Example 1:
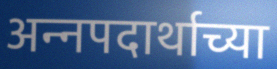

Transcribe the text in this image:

अन्नपदार्थाच्या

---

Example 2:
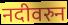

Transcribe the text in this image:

नदीवरुन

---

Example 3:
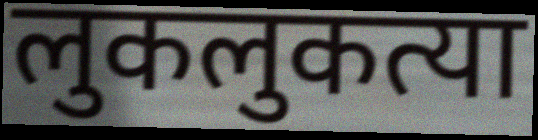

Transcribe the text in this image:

लुकलुकत्या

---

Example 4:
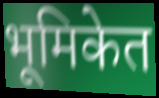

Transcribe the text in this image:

भूमिकेत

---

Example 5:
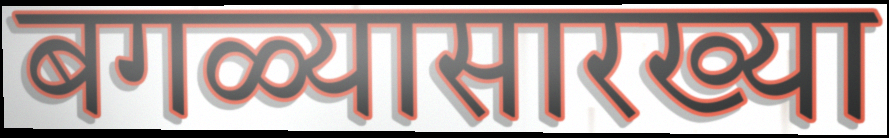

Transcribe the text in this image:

बगळ्यासारख्या